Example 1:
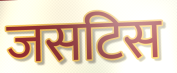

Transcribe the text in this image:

जसटिस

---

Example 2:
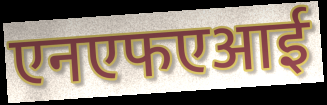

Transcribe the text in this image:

एनएफएआई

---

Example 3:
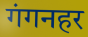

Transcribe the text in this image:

गंगनहर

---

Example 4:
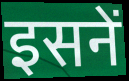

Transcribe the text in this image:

इसनें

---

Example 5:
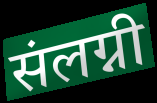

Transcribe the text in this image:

संलग्नी